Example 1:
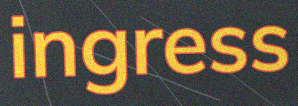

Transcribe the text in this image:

ingress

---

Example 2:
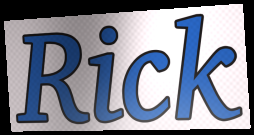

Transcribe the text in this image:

Rick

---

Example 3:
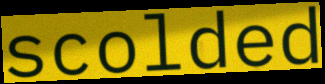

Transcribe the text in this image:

scolded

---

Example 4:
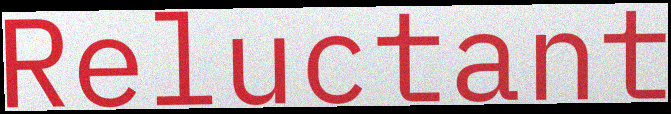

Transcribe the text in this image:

Reluctant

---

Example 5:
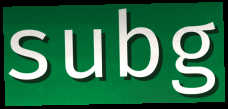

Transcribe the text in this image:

subg